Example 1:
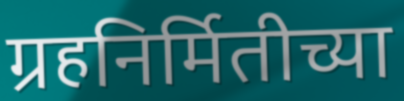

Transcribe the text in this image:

ग्रहनिर्मितीच्या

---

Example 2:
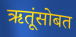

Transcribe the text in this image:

ऋतूंसोबत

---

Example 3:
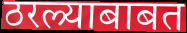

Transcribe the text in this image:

ठरल्याबाबत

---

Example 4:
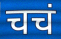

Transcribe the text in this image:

चचं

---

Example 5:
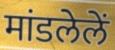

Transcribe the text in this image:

मांडलेलें